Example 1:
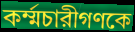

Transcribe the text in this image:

কর্ম্মচারীগণকে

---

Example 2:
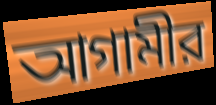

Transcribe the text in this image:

আগামীর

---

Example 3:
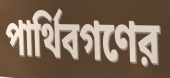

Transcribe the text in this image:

পার্থিবগণের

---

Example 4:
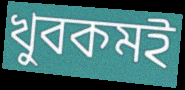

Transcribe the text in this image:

খুবকমই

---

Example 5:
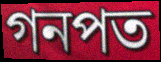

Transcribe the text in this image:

গনপত